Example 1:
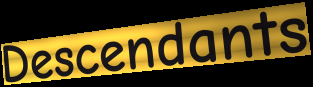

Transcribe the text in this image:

Descendants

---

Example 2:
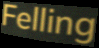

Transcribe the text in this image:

Felling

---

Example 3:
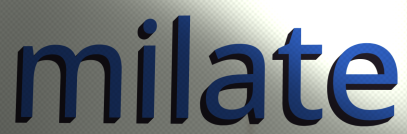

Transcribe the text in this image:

milate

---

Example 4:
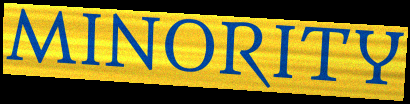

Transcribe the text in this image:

MINORITY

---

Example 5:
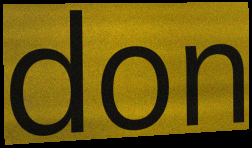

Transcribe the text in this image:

don